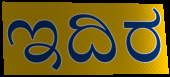
ಇದಿರ